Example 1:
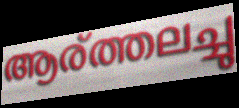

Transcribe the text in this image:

ആര്ത്തലച്ചു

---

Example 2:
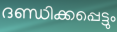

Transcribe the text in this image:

ദണ്ഡിക്കപ്പെട്ടും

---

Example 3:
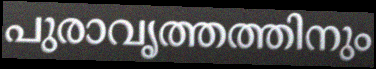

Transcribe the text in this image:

പുരാവൃത്തത്തിനും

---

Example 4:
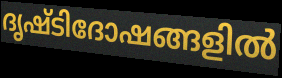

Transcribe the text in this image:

ദൃഷ്ടിദോഷങ്ങളിൽ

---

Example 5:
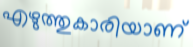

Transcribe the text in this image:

എഴുത്തുകാരിയാണ്